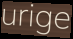
urige